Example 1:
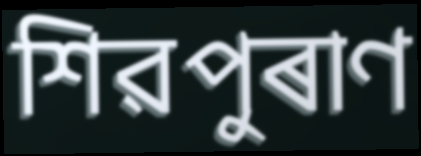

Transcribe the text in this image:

শিৱপুৰাণ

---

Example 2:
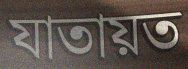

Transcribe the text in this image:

যাতায়ত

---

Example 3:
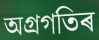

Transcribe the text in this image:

অগ্ৰগতিৰ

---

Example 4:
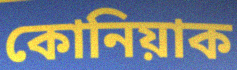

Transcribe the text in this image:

কোনিয়াক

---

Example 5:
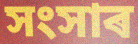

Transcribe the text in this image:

সংসাৰ